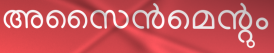
അസൈൻമെന്റും